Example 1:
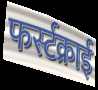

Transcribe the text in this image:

फर्स्टक्राई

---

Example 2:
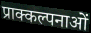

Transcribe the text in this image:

प्राक्कल्पनाओं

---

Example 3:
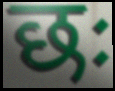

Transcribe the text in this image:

छः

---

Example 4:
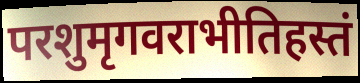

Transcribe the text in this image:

परशुमृगवराभीतिहस्तं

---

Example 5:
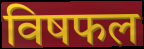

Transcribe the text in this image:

विषफल